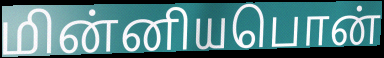
மின்னியபொன்